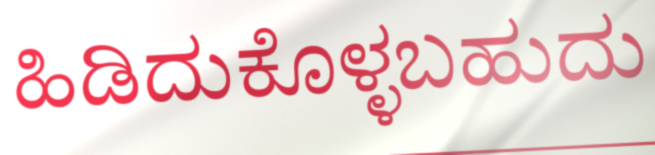
ಹಿಡಿದುಕೊಳ್ಳಬಹುದು